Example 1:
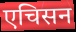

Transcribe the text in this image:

एचिसन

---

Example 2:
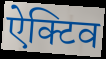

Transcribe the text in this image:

ऐक्टिव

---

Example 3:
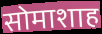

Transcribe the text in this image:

सोमाशाह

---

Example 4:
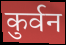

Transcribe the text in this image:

कुर्वन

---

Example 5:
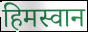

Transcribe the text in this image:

हिमस्वान